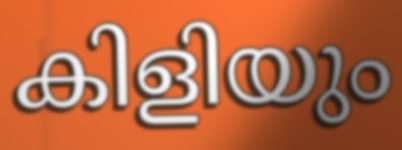
കിളിയും